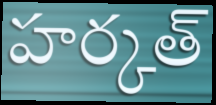
హర్కత్